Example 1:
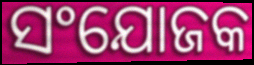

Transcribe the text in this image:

ସଂଯୋଜକ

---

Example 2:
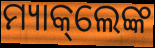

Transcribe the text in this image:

ମ୍ୟାକ୍‌ଲେଙ୍କ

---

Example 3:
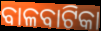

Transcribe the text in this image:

ବାଳବାଟିକା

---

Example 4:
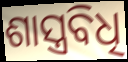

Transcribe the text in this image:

ଶାସ୍ତ୍ରବିଧି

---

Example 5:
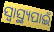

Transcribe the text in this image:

ସ୍ବାସ୍ଥ୍ୟପାଇଁ